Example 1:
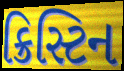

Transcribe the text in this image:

ક્રિસ્ટિન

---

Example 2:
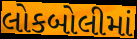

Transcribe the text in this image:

લોકબોલીમાં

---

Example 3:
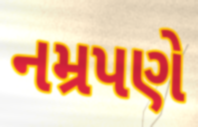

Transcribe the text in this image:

નમ્રપણે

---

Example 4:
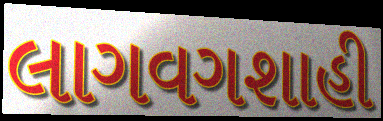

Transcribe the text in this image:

લાગવગશાહી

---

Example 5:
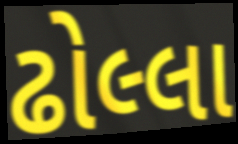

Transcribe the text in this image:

ઢોલ્લા